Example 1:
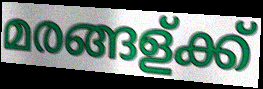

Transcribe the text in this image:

മരങ്ങള്ക്ക്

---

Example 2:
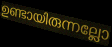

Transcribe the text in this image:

ഉണ്ടായിരുന്നല്ലോ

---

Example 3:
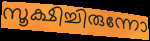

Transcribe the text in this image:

സൂക്ഷിച്ചിരുന്നോ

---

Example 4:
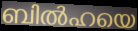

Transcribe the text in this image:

ബിൽഹയെ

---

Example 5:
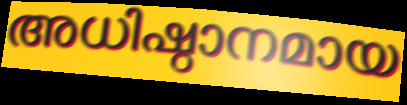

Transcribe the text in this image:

അധിഷ്ഠാനമായ